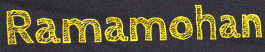
Ramamohan